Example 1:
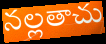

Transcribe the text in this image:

నల్లతాచు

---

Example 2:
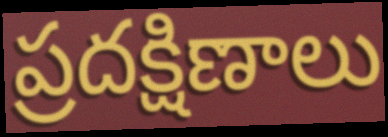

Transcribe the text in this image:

ప్రదక్షిణాలు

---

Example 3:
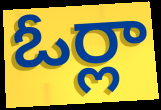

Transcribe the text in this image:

ఓర్లా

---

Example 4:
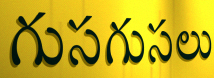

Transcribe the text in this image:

గుసగుసలు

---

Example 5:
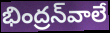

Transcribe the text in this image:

భింద్రన్‌వాలే